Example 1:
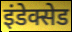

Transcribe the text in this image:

इंडेक्सेड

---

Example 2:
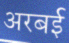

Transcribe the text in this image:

अरबई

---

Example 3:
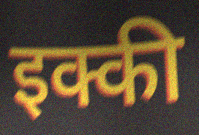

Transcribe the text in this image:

इक्की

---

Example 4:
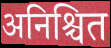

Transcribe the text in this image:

अनिश्चित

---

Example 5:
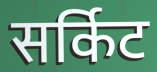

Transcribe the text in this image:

सर्किट